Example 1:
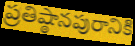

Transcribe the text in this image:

ప్రతిష్ఠానపురానికి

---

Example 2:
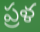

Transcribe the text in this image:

ప్రళ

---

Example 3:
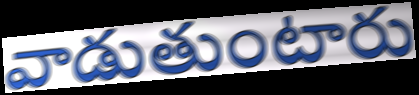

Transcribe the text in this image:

వాడుతుంటారు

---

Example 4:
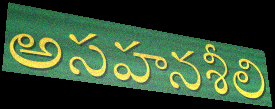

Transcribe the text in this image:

అసహనశీలి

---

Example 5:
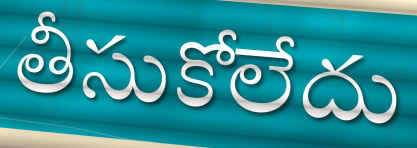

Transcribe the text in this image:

తీసుకోలేదు